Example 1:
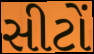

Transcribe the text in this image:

સીટોં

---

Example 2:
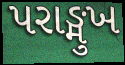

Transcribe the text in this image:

પરાઙ્મુખ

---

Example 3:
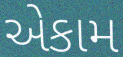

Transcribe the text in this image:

એકામ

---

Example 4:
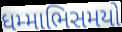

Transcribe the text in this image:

ધમ્માભિસમયો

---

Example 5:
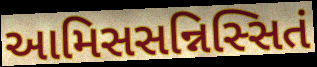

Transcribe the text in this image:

આમિસસન્નિસ્સિતં